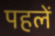
पहलें